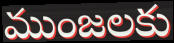
ముంజలకు